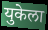
युकेला